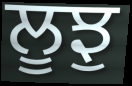
ਲੂਝੁ